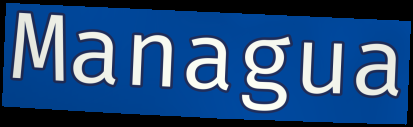
Managua